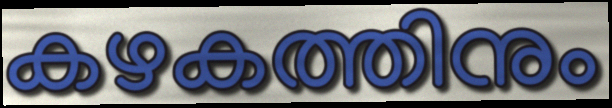
കഴകത്തിനും